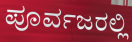
ಪೂರ್ವಜರಲ್ಲಿ